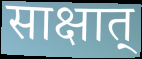
साक्षात्